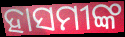
ହାସମୀଙ୍କ